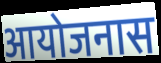
आयोजनास